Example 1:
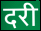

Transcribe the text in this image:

दरी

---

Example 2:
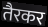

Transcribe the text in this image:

तैरकर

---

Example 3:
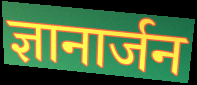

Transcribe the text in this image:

ज्ञानार्जन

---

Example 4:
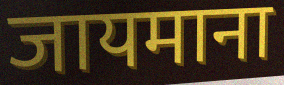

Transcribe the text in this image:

जायमाना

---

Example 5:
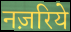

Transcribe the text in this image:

नज़रिये